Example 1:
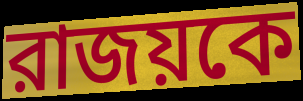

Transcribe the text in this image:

রাজয়কে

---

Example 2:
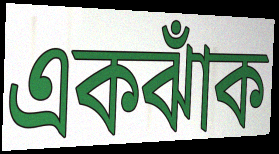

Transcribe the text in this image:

একঝাঁক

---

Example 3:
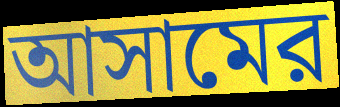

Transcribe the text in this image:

আসামের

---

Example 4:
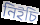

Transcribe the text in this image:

নিইচি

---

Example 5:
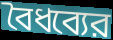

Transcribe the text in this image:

বৈধব্যের